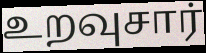
உறவுசார்